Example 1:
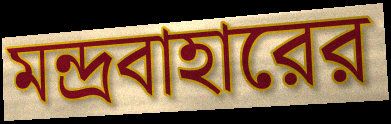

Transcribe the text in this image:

মন্দ্রবাহারের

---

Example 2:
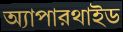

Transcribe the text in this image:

অ্যাপারথাইড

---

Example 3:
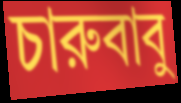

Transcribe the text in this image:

চারুবাবু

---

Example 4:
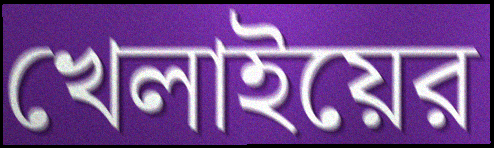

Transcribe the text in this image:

খেলাইয়ের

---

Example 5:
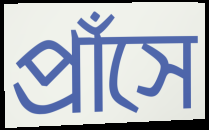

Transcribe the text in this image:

প্রাঁসে